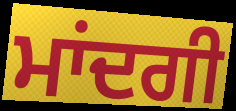
ਮਾਂਦਗੀ